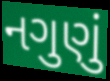
નગુણું